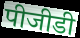
पीजीडी